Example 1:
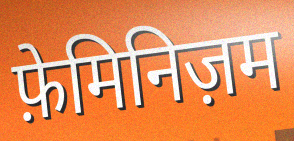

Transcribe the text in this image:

फ़ेमिनिज़म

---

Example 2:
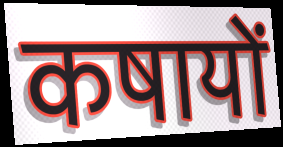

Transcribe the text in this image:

कषायों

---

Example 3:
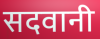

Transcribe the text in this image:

सदवानी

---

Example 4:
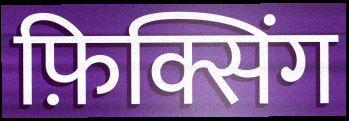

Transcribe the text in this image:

फ़िक्सिंग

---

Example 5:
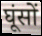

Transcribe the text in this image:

घूंसों